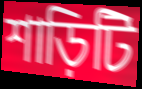
শাড়িটি